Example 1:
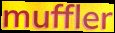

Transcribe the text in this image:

muffler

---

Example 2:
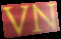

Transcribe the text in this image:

VN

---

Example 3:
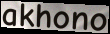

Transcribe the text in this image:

akhono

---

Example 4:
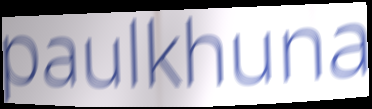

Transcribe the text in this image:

paulkhuna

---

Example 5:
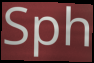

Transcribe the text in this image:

Sph